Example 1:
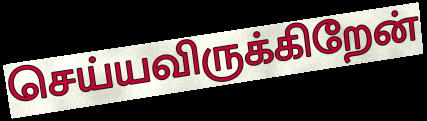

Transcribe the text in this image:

செய்யவிருக்கிறேன்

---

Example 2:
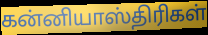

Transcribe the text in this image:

கன்னியாஸ்திரிகள்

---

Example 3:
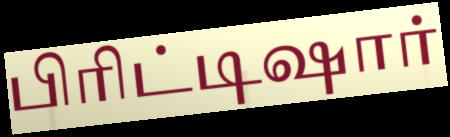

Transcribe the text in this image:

பிரிட்டிஷார்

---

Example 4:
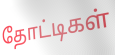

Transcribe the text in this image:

தோட்டிகள்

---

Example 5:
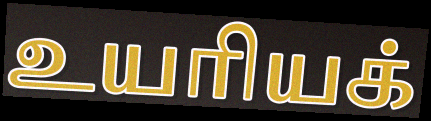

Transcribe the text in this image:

உயரியக்